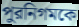
পুরনিগমকে